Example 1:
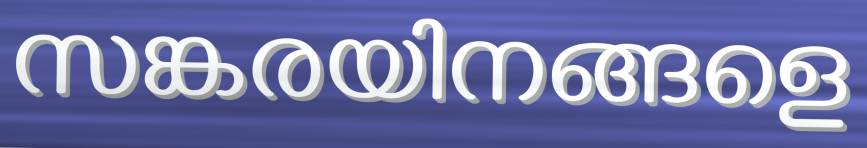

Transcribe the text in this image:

സങ്കരയിനങ്ങളെ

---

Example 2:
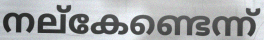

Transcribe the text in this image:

നല്കേണ്ടെന്ന്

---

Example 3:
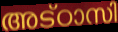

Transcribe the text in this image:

അട്ഠാസി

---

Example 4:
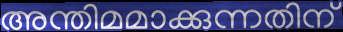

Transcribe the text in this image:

അന്തിമമാക്കുന്നതിന്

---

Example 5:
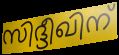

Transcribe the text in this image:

സിദ്ദീഖിന്